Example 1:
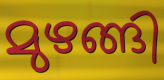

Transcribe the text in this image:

മുഴങ്ങി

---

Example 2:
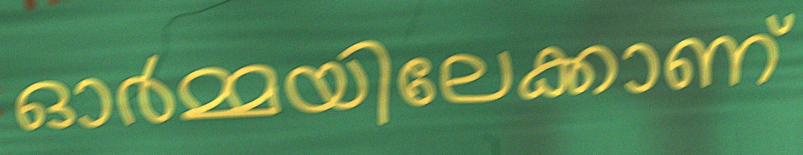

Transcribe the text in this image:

ഓർമ്മയിലേക്കാണ്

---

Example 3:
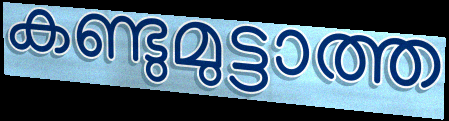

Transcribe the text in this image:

കണ്ടുമുട്ടാത്ത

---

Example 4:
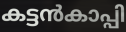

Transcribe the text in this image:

കട്ടൻകാപ്പി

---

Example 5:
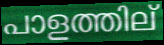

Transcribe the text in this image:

പാളത്തില്